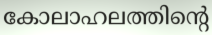
കോലാഹലത്തിന്റെ